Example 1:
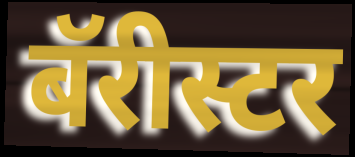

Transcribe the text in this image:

बॅरीस्टर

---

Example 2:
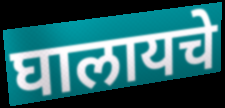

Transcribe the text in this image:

घालायचे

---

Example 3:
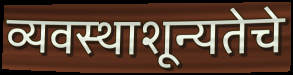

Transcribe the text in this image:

व्यवस्थाशून्यतेचे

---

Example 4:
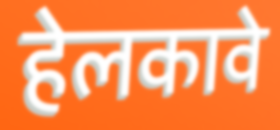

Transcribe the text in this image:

हेलकावे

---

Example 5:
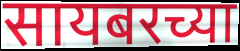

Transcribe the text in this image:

सायबरच्या